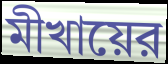
মীখায়ের